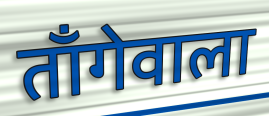
ताँगेवाला